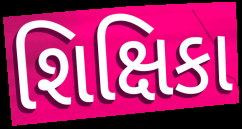
શિક્ષિકા